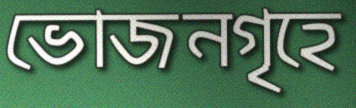
ভোজনগৃহে